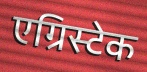
एग्रिस्टेक